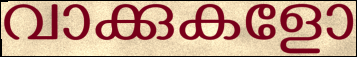
വാക്കുകളോ